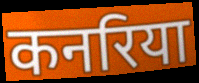
कनरिया